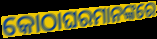
କୋଠାଘରମାନଙ୍କରେ